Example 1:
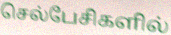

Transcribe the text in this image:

செல்பேசிகளில்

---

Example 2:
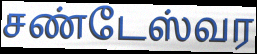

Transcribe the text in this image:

சண்டேஸ்வர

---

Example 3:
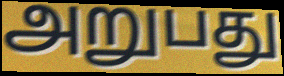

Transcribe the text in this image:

அறுபது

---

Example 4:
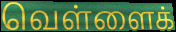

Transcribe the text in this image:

வெள்ளைக்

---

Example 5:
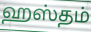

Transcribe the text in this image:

ஹஸ்தம்